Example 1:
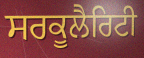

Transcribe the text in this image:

ਸਰਕੂਲੈਰਿਟੀ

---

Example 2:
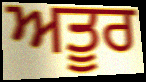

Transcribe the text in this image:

ਅਤੂਰ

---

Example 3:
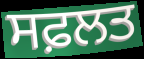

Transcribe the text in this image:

ਸਫ਼ਲਤ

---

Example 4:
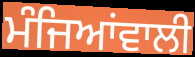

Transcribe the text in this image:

ਮੰਜਿਆਂਵਾਲੀ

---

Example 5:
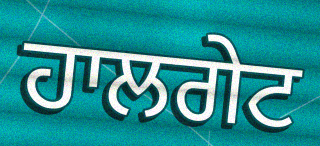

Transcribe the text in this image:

ਹਾਲਗੇਟ